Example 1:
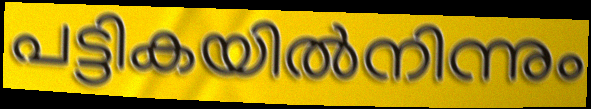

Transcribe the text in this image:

പട്ടികയിൽനിന്നും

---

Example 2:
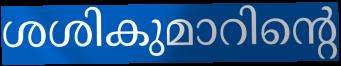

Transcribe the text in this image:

ശശികുമാറിന്റെ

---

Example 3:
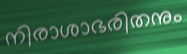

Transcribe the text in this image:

നിരാശാഭരിതനും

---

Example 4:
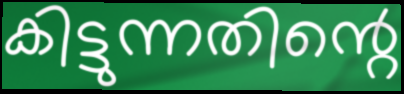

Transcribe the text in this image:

കിട്ടുന്നതിന്റെ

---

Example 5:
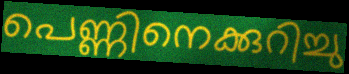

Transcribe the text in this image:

പെണ്ണിനെക്കുറിച്ചു